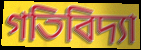
গতিবিদ্যা